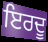
ਇਰਦੂ